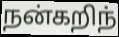
நன்கறிந்